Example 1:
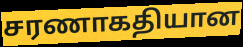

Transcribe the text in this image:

சரணாகதியான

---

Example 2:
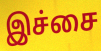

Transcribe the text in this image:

இச்சை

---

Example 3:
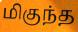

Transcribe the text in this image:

மிகுந்த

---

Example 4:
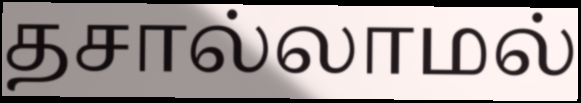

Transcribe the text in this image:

தசால்லாமல்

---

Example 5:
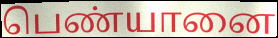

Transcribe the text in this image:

பெண்யானை